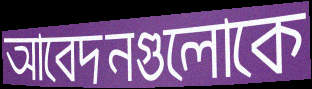
আবেদনগুলোকে